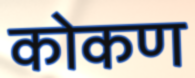
कोकण